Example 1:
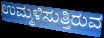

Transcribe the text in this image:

ಉಮ್ಮಳಿಸುತ್ತಿರುವ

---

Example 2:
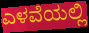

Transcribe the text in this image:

ಎಳವೆಯಲ್ಲಿ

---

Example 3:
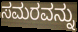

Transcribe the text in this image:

ಸಮರವನ್ನು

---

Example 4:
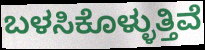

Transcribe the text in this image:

ಬಳಸಿಕೊಳ್ಳುತ್ತಿವೆ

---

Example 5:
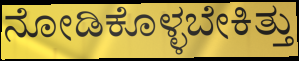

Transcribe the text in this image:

ನೋಡಿಕೊಳ್ಳಬೇಕಿತ್ತು